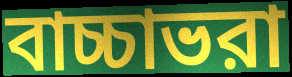
বাচ্চাভরা